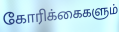
கோரிக்கைகளும்